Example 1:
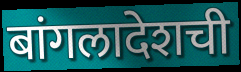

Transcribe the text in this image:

बांगलादेशची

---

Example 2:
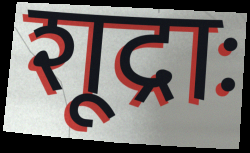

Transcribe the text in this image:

शूद्राः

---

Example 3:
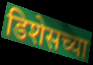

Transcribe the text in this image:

डिशेसच्या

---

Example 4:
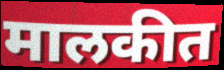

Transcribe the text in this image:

मालकीत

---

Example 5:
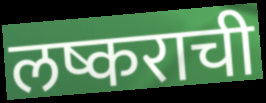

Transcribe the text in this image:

लष्कराची